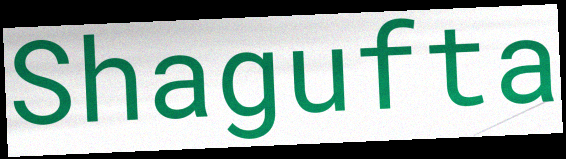
Shagufta